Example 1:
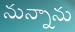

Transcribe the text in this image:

నున్నాను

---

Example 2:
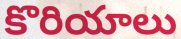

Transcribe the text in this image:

కొరియాలు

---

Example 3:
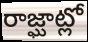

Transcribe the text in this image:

రాజ్ఘాట్లో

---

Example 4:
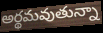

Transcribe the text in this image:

అర్థమవుతున్నా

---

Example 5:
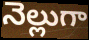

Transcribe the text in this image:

నెల్లుగా